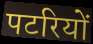
पटरियों